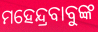
ମହେନ୍ଦ୍ରବାବୁଙ୍କ